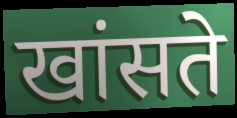
खांसते